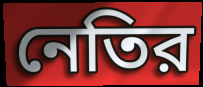
নেতির